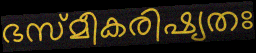
ഭസ്മീകരിഷ്യതഃ